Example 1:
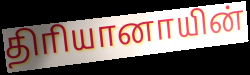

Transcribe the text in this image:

திரியானாயின்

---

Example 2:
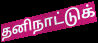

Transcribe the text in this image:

தனிநாட்டுக்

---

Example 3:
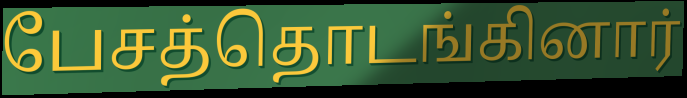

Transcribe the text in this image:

பேசத்தொடங்கினார்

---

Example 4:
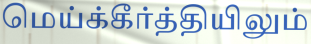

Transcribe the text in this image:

மெய்க்கீர்த்தியிலும்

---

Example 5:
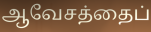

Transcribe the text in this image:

ஆவேசத்தைப்